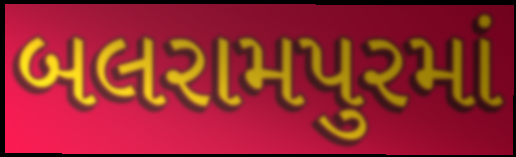
બલરામપુરમાં